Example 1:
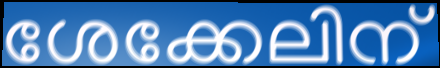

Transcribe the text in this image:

ശേക്കേലിന്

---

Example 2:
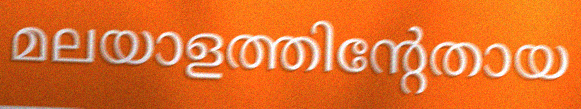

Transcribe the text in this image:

മലയാളത്തിന്റേതായ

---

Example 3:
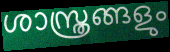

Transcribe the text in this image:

ശാസ്ത്രങ്ങളും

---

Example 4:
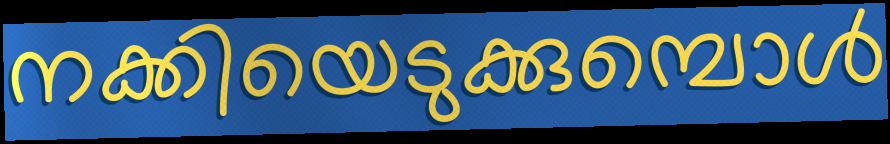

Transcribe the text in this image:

നക്കിയെടുക്കുമ്പൊൾ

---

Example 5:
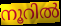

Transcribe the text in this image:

നൂറിൽ